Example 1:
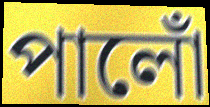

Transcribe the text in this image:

পালোঁ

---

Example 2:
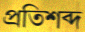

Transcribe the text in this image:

প্ৰতিশব্দ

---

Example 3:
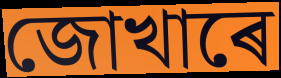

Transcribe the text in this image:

জোখাৰে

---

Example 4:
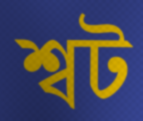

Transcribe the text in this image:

শ্বট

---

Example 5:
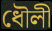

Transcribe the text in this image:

ধৌলী